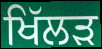
ਖਿੱਲੜ